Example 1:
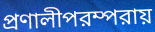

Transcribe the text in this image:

প্রণালীপরম্পরায়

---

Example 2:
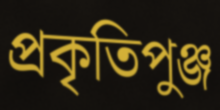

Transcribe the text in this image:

প্রকৃতিপুঞ্জ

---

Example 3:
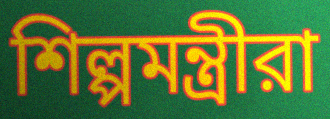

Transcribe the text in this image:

শিল্পমন্ত্রীরা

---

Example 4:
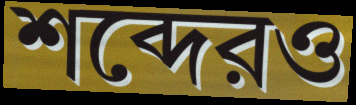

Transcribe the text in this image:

শব্দেরও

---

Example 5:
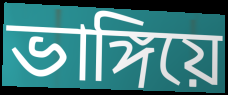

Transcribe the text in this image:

ভাঙ্গিয়ে